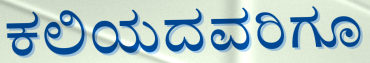
ಕಲಿಯದವರಿಗೂ